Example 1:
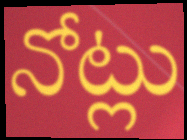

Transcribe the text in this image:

నోట్లు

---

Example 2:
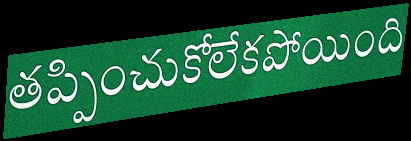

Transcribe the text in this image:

తప్పించుకోలేకపోయింది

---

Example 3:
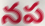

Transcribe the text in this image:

నప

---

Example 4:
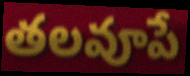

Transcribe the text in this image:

తలవూపే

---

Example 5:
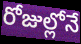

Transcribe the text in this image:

రోజుల్లోనే